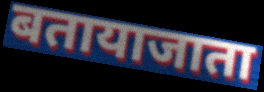
बतायाजाता